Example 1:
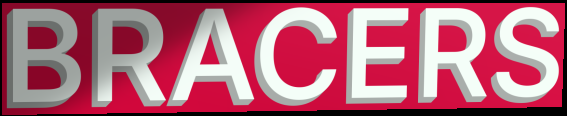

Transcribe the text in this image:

BRACERS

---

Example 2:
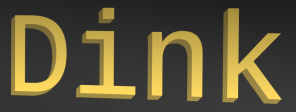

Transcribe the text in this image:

Dink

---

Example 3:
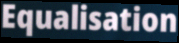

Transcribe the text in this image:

Equalisation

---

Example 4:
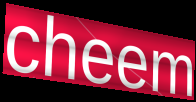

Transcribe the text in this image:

cheem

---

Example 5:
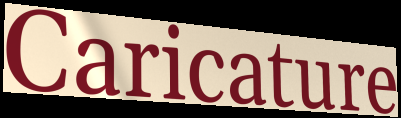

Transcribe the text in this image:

Caricature